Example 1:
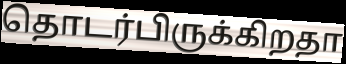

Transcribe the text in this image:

தொடர்பிருக்கிறதா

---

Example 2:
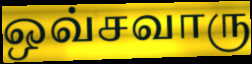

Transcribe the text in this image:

ஒவ்சவாரு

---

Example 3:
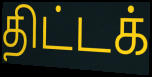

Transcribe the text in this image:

திட்டக்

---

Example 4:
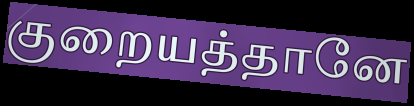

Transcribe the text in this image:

குறையத்தானே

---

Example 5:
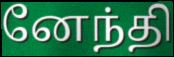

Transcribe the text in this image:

னேந்தி